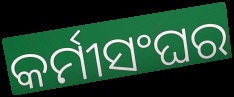
କର୍ମୀସଂଘର